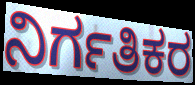
ನಿರ್ಗತಿಕರ